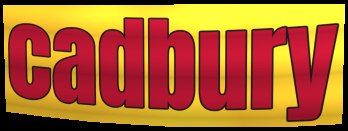
cadbury